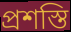
প্রশস্তি